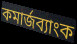
কমার্জব্যাংক